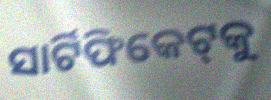
ସାର୍ଟିଫିକେଟ୍‌କୁ